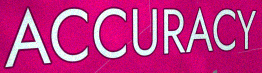
ACCURACY